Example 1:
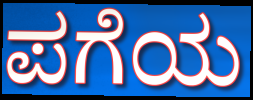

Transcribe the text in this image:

ಪಗೆಯ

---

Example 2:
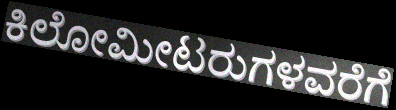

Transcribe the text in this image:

ಕಿಲೋಮೀಟರುಗಳವರೆಗೆ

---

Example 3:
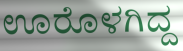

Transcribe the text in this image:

ಊರೊಳಗಿದ್ದ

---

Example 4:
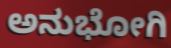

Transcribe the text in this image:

ಅನುಭೋಗಿ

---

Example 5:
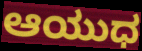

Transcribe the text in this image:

ಆಯುಧ